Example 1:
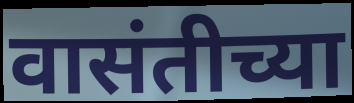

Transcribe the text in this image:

वासंतीच्या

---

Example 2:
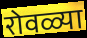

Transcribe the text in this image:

रोवळ्या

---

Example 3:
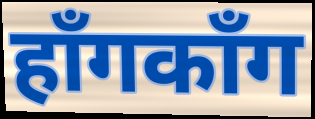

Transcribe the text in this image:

हाँगकाँग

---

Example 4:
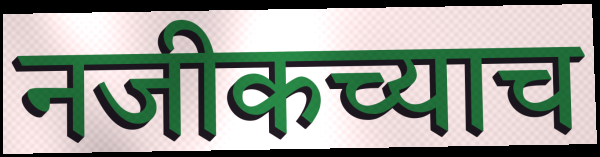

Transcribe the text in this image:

नजीकच्याच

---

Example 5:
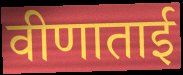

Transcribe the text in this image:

वीणाताई